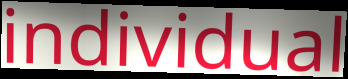
individual